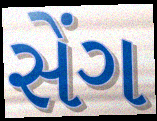
સેંગ